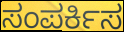
ಸಂಪರ್ಕಿಸ